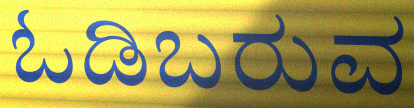
ಓಡಿಬರುವ